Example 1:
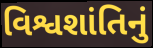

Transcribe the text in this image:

વિશ્વશાંતિનું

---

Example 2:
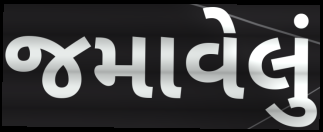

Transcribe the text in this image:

જમાવેલું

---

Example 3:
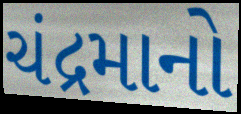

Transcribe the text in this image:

ચંદ્રમાનો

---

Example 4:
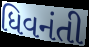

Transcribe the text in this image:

ધિવનંતી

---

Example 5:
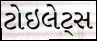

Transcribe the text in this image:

ટોઇલેટ્સ